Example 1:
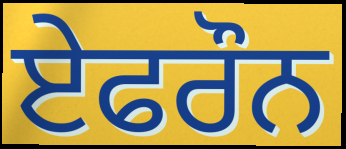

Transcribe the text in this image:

ਏਫਰੌਨ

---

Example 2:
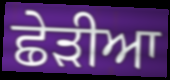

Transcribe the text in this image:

ਛੇੜੀਆ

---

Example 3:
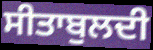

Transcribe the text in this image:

ਸੀਤਾਬੁਲਦੀ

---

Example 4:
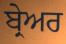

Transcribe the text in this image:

ਬ੍ਰੇਅਰ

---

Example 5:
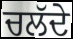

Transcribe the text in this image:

ਚਲੱਦੇ